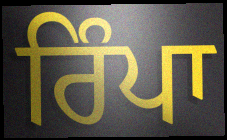
ਰਿੰਪਾ